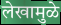
लेखामुळे